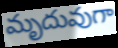
మృదువుగా